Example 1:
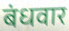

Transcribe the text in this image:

बंधवार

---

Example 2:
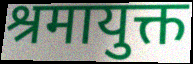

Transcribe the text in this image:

श्रमायुक्त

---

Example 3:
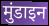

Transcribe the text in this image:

मुंडाइन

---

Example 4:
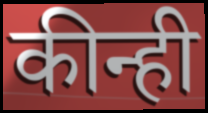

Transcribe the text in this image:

कीन्ही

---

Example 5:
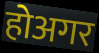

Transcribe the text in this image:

होअगर